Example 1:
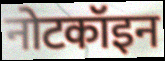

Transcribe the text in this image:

नोटकॉइन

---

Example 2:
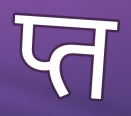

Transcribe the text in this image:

प्त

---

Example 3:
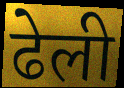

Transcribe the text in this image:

ढेली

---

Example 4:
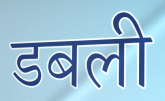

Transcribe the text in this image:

डबली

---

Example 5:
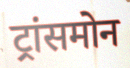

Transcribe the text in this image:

ट्रांसमोन